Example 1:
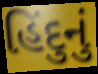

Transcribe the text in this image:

હિંદુનું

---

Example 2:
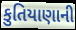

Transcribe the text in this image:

કુતિયાણાની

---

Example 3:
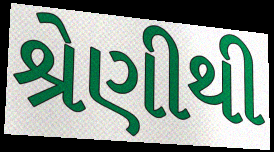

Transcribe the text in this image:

શ્રેણીથી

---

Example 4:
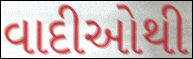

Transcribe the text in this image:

વાદીઓથી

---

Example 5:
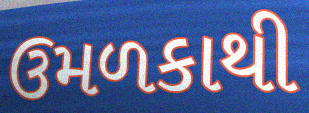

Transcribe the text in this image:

ઉમળકાથી